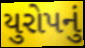
યુરોપનું